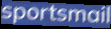
sportsmail